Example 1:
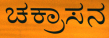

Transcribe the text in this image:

ಚಕ್ರಾಸನ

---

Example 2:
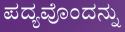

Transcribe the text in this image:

ಪದ್ಯವೊಂದನ್ನು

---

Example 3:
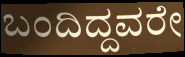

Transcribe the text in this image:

ಬಂದಿದ್ದವರೇ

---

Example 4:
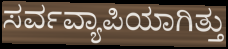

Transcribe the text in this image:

ಸರ್ವವ್ಯಾಪಿಯಾಗಿತ್ತು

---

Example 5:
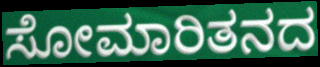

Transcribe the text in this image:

ಸೋಮಾರಿತನದ